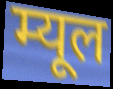
म्यूल